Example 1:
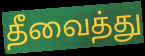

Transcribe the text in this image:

தீவைத்து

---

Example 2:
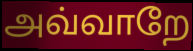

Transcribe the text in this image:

அவ்வாறே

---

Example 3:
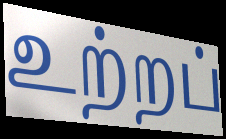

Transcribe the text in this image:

உற்றப்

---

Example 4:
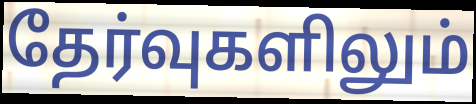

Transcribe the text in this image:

தேர்வுகளிலும்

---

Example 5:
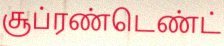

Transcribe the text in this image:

சூப்ரண்டெண்ட்